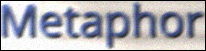
Metaphor